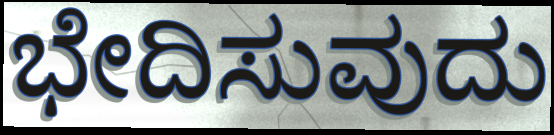
ಭೇದಿಸುವುದು